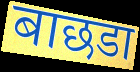
बाछडा